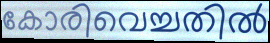
കോരിവെച്ചതിൽ